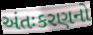
અંતઃકરણનો